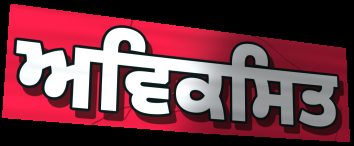
ਅਵਿਕਸਿਤ